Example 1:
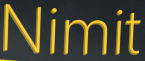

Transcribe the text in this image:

Nimit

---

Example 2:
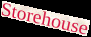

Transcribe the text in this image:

Storehouse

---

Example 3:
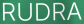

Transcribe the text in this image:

RUDRA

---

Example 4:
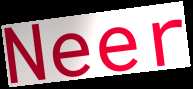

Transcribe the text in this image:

Neer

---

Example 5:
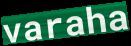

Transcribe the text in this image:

varaha